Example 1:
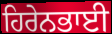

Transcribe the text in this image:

ਹਿਰੇਨਭਾਈ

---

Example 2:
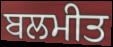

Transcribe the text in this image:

ਬਲਮੀਤ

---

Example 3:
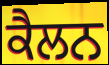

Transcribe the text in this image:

ਕੈਲਨ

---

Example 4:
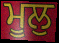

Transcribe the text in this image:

ਮੂਲੁ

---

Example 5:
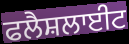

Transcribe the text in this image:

ਫਲੈਸ਼ਲਾਈਟ